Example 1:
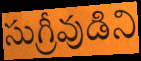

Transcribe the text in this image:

సుగ్రీవుడిని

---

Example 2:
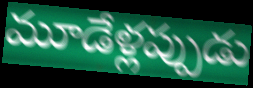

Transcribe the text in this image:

మూడేళ్లప్పుడు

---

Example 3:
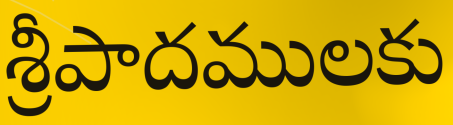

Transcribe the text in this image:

శ్రీపాదములకు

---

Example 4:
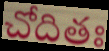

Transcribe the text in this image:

చోదితః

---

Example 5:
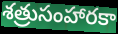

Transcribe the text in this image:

శత్రుసంహారకా